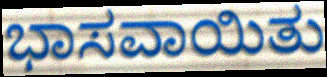
ಭಾಸವಾಯಿತು